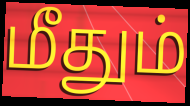
மீதும்